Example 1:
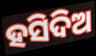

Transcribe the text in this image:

ହସିଦିଅ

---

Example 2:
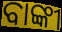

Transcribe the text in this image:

ବାଙ୍କୀ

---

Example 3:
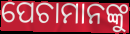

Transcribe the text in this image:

ପେଚାମାନଙ୍କୁ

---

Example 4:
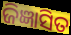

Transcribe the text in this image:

ଜିଜ୍ଞାସିତ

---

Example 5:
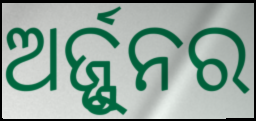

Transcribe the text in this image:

ଅର୍ଜ୍ଜୁନର